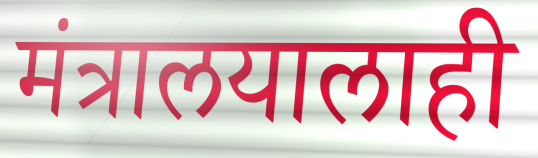
मंत्रालयालाही